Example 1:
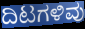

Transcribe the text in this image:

ದಿಟಗಳಿವು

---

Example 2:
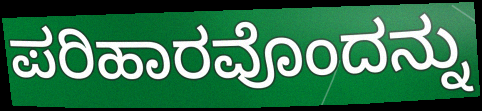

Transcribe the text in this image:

ಪರಿಹಾರವೊಂದನ್ನು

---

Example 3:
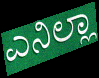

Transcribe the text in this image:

ಎನಿಲ್ಲಾ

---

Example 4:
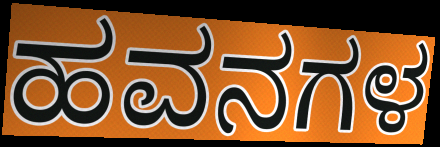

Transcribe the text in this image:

ಹವನಗಳ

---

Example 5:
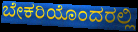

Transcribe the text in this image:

ಬೇಕರಿಯೊಂದರಲ್ಲಿ